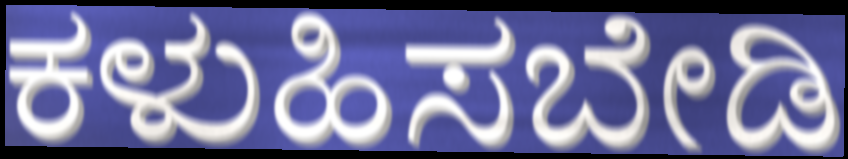
ಕಳುಹಿಸಬೇಡಿ